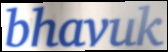
bhavuk